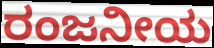
ರಂಜನೀಯ